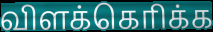
விளக்கெரிக்க